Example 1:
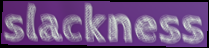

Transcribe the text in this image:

slackness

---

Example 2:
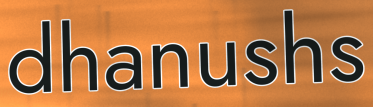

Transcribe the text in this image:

dhanushs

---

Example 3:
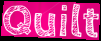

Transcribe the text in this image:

Quilt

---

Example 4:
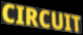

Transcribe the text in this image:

CIRCUIT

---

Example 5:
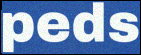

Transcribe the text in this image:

peds